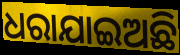
ଧରାଯାଇଅଛି